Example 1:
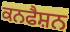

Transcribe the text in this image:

ਕਨਫੈਸ਼ਨ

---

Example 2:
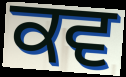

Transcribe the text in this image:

ਕਵ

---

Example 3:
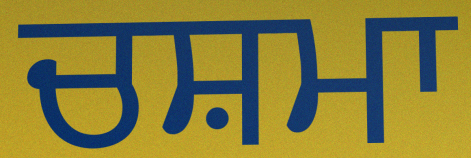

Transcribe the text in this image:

ਚਸ਼ਮਾ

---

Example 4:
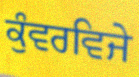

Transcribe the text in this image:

ਕੁੰਵਰਵਿਜੇ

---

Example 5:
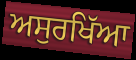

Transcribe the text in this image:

ਅਸੁਰਖਿੱਆ